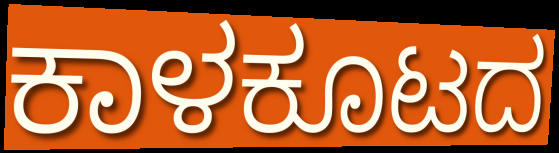
ಕಾಳಕೂಟದ